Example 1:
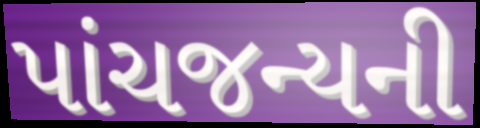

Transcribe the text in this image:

પાંચજન્યની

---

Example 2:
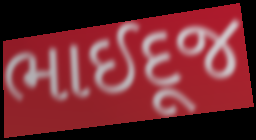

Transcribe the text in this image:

ભાઈદૂજ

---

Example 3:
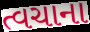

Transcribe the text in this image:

ત્વચાના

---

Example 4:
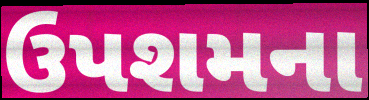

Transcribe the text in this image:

ઉપશમના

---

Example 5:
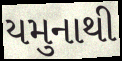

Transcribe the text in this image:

યમુનાથી